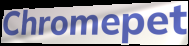
Chromepet